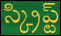
స్క్రిప్ట్